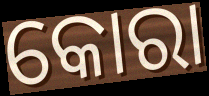
କୋରା